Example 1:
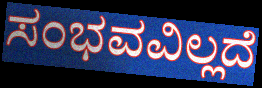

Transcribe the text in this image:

ಸಂಭವವಿಲ್ಲದೆ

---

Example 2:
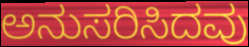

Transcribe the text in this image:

ಅನುಸರಿಸಿದವು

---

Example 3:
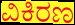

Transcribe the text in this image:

ವಿಕಿರಣ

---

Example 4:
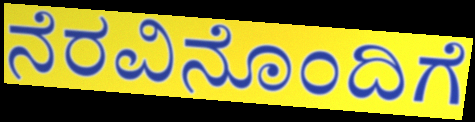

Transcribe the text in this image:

ನೆರವಿನೊಂದಿಗೆ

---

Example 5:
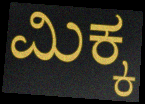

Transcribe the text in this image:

ಮಿಕ್ಕ